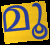
മൂ